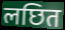
लछित